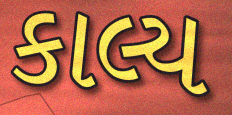
કાલ્ય